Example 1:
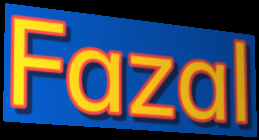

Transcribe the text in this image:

Fazal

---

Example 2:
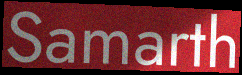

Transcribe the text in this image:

Samarth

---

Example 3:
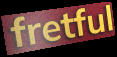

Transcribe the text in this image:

fretful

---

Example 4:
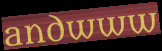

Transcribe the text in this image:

andwww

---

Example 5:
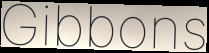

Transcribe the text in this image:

Gibbons